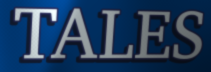
TALES